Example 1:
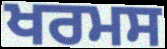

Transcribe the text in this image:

ਖਰਮਸ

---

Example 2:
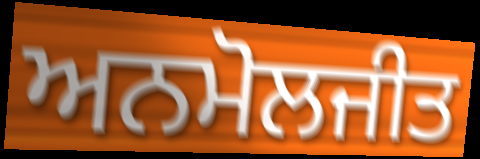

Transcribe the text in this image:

ਅਨਮੋਲਜੀਤ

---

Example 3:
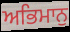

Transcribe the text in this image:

ਅਭਿਮਾਨੁ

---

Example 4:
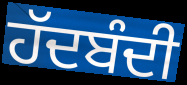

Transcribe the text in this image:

ਹੱਦਬੰਦੀ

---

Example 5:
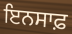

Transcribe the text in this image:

ਇਨਸਾਫ਼